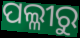
ପଲ୍ଳୀରୁ